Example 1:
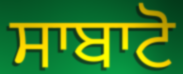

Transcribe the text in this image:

ਸਾਬਾਟੋ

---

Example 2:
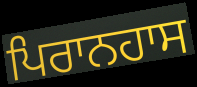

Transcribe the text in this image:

ਪਿਰਾਨਹਾਸ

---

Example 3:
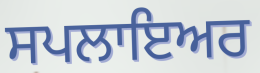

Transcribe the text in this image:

ਸਪਲਾਇਅਰ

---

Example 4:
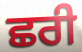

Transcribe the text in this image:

ਛਰੀ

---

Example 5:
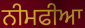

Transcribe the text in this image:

ਨੀਮਫੀਆ